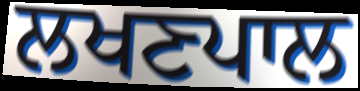
ਲਖਣਪਾਲ